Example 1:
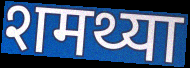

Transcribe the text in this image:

शमथ्या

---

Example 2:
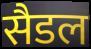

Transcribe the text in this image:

सैडल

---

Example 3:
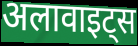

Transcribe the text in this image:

अलावाइट्स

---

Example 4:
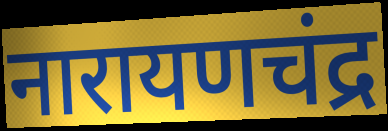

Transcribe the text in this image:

नारायणचंद्र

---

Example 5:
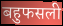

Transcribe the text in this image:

बहुफसली